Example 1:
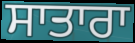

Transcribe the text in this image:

ਸਾਤਾਰਾ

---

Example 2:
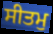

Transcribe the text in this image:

ਸੀਤਮੁ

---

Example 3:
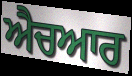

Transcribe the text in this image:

ਐਚਆਰ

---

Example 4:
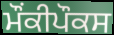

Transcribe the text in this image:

ਮੌਂਕੀਪੌਕਸ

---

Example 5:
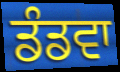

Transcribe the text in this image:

ਡੰਡਵਾ